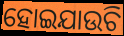
ହୋଇଯାଉଚି